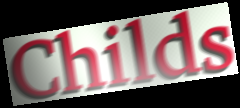
Childs